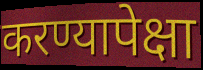
करण्यापेक्षा